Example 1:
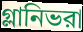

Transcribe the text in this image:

গ্লানিভরা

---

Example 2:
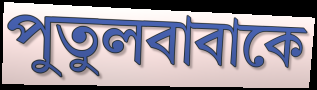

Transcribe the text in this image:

পুতুলবাবাকে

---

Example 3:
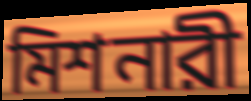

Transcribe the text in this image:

মিশনারী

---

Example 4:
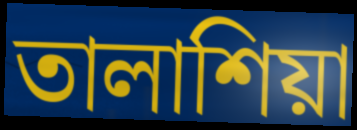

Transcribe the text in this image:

তালাশিয়া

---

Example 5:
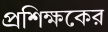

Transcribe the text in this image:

প্রশিক্ষকের